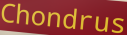
Chondrus